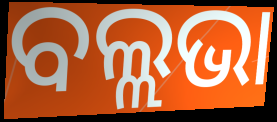
ବଲ୍ଲଭା